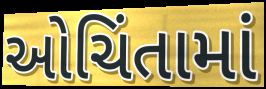
ઓચિંતામાં